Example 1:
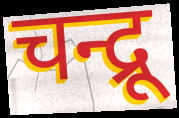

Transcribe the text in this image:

चन्द्रू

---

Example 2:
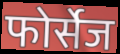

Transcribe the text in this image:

फोर्सेज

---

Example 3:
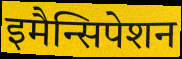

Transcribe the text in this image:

इमैन्सिपेशन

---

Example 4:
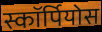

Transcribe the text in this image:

स्कॉर्पियोस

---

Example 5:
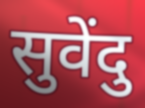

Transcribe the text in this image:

सुवेंदु